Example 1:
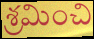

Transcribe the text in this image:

శ్రమించి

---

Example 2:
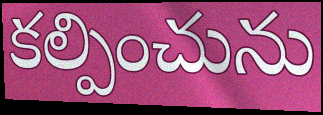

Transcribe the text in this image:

కల్పించును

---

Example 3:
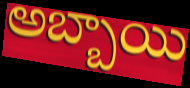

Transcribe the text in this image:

అబ్బాయి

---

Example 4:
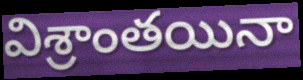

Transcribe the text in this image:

విశ్రాంతయినా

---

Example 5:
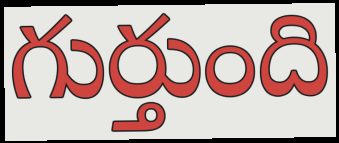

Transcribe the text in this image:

గుర్తుంది